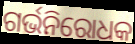
ଗର୍ଭନିରୋଧକ